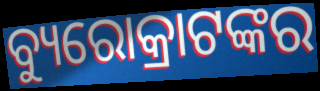
ବ୍ୟୁରୋକ୍ରାଟଙ୍କର